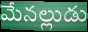
మేనల్లుడు